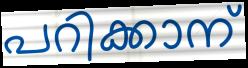
പറിക്കാന്